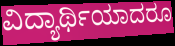
ವಿದ್ಯಾರ್ಥಿಯಾದರೂ